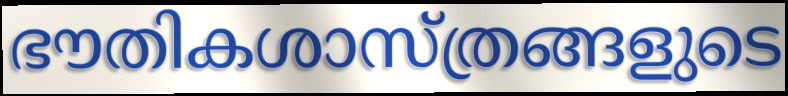
ഭൗതികശാസ്ത്രങ്ങളുടെ